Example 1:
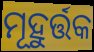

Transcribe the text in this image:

ମୂହୁର୍ତ୍ତକ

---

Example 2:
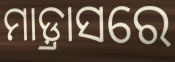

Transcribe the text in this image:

ମାଡ଼୍ରାସରେ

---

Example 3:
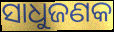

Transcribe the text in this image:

ସାଧୁଜଣକ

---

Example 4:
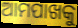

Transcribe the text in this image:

ଆମପାଖକୁ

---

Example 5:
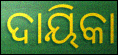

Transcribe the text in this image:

ଦାୟିକା